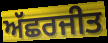
ਅੱਛਰਜੀਤ